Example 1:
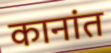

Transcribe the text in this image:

कानांत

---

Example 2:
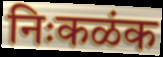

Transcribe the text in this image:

निःकळंक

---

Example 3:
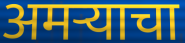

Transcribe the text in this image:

अमऱ्याचा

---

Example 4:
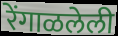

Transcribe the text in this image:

रेंगाळलेली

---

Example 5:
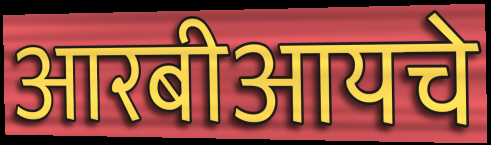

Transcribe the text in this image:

आरबीआयचे